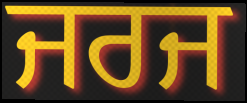
ਜਰਜ